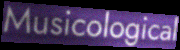
Musicological